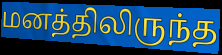
மனத்திலிருந்த